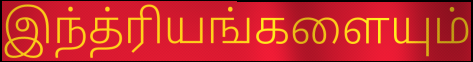
இந்த்ரியங்களையும்